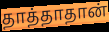
தாத்தாதான்